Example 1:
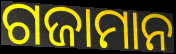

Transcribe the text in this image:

ଗଜାମାନ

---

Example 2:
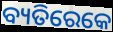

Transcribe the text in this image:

ବ୍ୟତିରେକେ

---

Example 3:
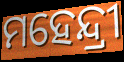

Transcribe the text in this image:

ମହେନ୍ଦ୍ରୀ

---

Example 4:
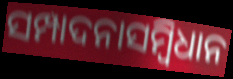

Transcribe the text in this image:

ସମ୍ପାଦନାସମ୍ବିଧାନ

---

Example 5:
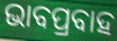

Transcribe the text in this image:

ଭାବପ୍ରବାହ